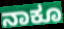
ನಾಕೂ